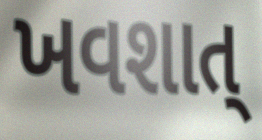
ખવશાત્